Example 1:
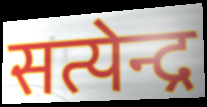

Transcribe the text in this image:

सत्येन्द्र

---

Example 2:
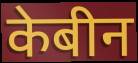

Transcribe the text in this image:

केबीन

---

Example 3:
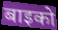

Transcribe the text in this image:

बाइको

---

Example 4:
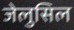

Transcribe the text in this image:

जेलुसिल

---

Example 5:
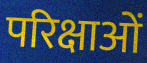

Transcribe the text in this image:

परिक्षाओं